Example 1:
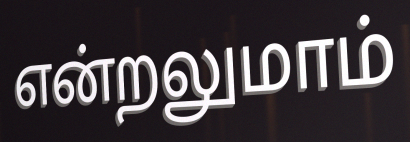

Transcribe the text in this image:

என்றலுமாம்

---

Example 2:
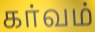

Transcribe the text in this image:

கர்வம்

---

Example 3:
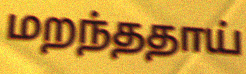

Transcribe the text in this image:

மறந்ததாய்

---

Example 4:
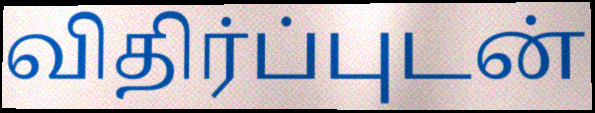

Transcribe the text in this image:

விதிர்ப்புடன்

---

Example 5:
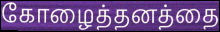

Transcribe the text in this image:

கோழைத்தனத்தை